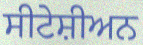
ਸੀਟੇਸ਼ੀਅਨ